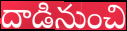
దాడినుంచి